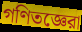
গণিতজ্ঞেরা